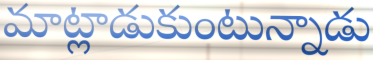
మాట్లాడుకుంటున్నాడు